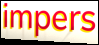
impers